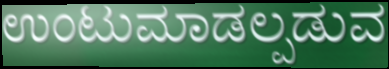
ಉಂಟುಮಾಡಲ್ಪಡುವ